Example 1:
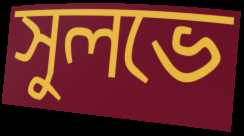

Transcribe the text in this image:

সুলভে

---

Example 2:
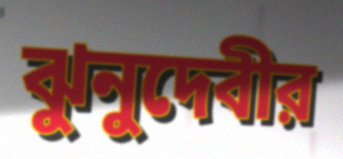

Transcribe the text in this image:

ঝুনুদেবীর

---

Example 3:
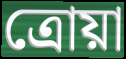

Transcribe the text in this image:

ত্রোয়া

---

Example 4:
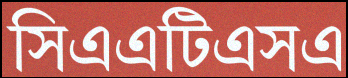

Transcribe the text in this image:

সিএএটিএসএ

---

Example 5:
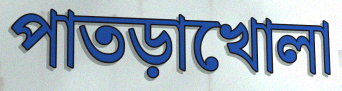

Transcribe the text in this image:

পাতড়াখোলা